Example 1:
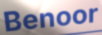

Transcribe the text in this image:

Benoor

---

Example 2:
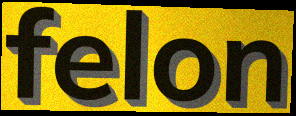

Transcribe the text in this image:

felon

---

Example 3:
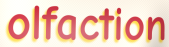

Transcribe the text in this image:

olfaction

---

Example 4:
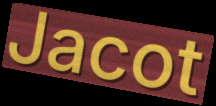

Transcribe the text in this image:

Jacot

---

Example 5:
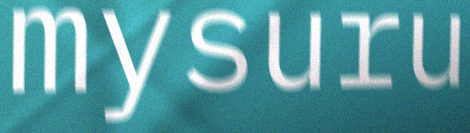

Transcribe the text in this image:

mysuru